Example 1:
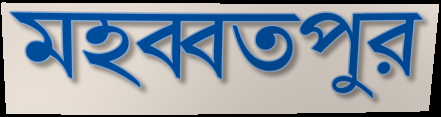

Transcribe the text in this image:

মহব্বতপুর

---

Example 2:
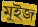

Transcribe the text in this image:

মুইজ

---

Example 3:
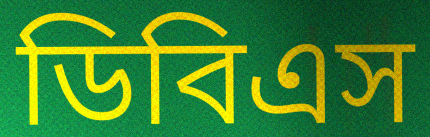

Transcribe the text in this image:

ডিবিএস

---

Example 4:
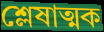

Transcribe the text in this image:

শ্লেষাত্মক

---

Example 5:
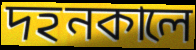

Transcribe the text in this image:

দহনকালে